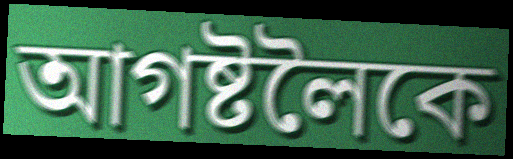
আগষ্টলৈকে